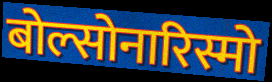
बोल्सोनारिस्मो